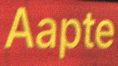
Aapte